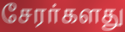
சேரர்களது